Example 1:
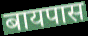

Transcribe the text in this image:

बायपास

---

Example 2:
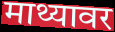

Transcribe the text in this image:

माथ्यावर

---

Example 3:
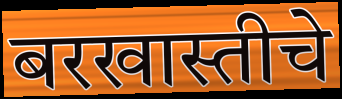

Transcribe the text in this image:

बरखास्तीचे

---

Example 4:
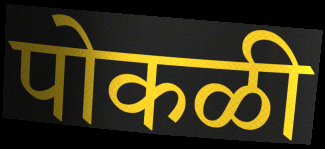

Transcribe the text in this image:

पोकळी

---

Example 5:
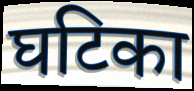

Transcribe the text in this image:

घटिका